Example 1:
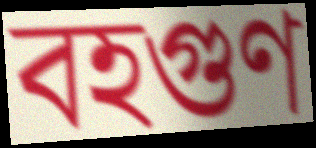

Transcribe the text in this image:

বহগুণ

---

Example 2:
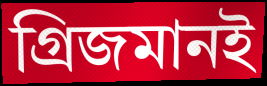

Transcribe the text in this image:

গ্রিজমানই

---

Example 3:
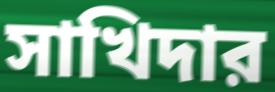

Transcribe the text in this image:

সাখিদার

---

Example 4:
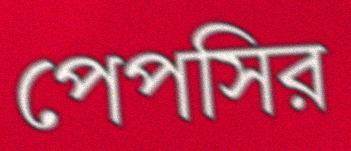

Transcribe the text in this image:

পেপসির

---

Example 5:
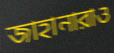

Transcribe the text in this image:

জাহানারাও